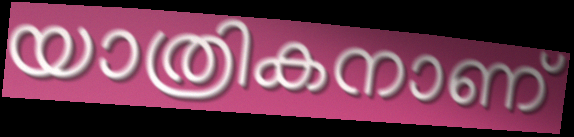
യാത്രികനാണ്